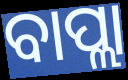
ବାପ୍ଲା